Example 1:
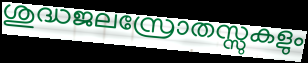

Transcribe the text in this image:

ശുദ്ധജലസ്രോതസ്സുകളും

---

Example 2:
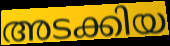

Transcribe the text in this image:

അടക്കിയ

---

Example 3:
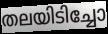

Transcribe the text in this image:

തലയിടിച്ചോ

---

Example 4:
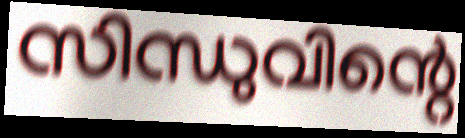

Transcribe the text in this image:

സിന്ധുവിന്റെ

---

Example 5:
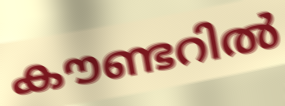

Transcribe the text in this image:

കൗണ്ടറിൽ